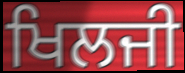
ਖਿਲਜੀ